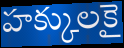
హక్కులకై